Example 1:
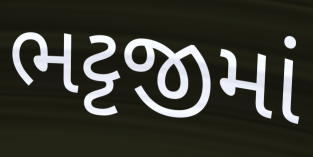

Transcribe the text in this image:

ભટ્ટજીમાં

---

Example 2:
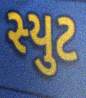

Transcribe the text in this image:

સ્યુટ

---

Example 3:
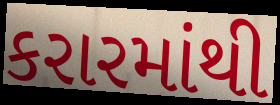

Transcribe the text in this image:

કરારમાંથી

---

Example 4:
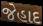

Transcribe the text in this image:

જેહાદ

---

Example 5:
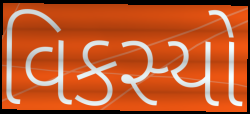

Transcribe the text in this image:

વિકસ્યો